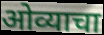
ओव्याचा